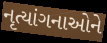
નૃત્યાંગનાઓને